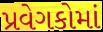
પ્રવેગકોમાં